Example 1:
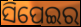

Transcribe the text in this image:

ସିପେଇର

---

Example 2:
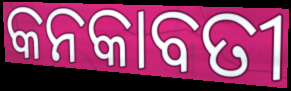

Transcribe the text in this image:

କନକାବତୀ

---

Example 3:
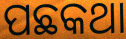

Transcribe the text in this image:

ପଛକଥା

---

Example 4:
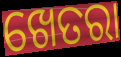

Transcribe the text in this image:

ଖେତରା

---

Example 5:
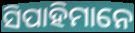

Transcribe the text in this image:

ସିପାହିମାନେ